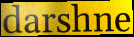
darshne